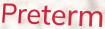
Preterm